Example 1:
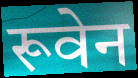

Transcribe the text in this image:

रूवेन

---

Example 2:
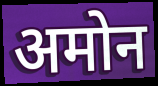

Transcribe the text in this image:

अमोन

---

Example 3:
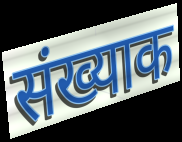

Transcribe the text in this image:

संख्याक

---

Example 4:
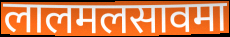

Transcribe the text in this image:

लालमलसावमा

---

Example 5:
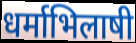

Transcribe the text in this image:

धर्माभिलाषी